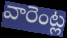
వారెంట్ల